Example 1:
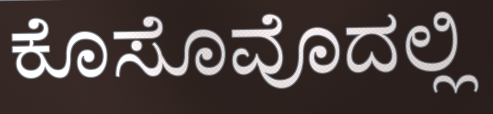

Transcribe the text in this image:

ಕೊಸೊವೊದಲ್ಲಿ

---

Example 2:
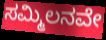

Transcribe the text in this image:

ಸಮ್ಮಿಲನವೇ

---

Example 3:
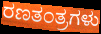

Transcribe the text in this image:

ರಣತಂತ್ರಗಳು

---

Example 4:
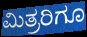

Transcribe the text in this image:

ಮಿತ್ರರಿಗೂ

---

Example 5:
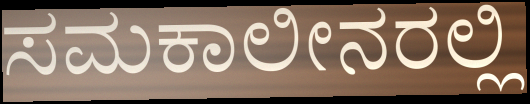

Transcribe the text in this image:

ಸಮಕಾಲೀನರಲ್ಲಿ